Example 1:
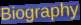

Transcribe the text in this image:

Biography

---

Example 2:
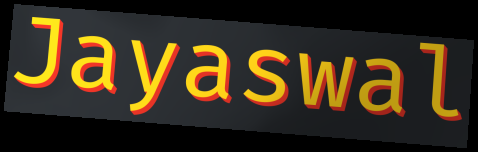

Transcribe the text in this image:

Jayaswal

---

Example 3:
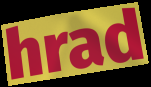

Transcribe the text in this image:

hrad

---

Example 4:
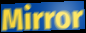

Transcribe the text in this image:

Mirror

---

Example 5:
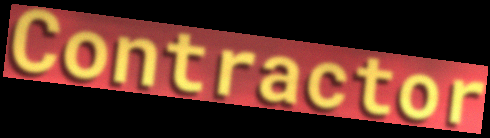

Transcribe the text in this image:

Contractor